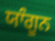
ਯਾੰਗੂਨ